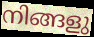
നിങ്ങളു